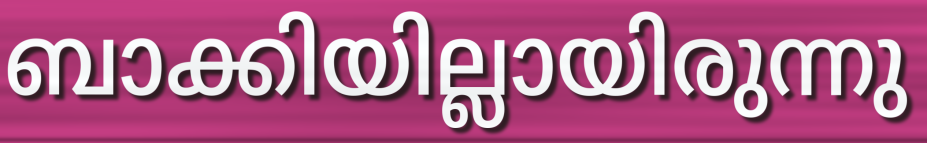
ബാക്കിയില്ലായിരുന്നു